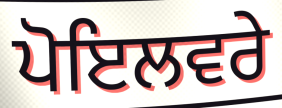
ਪੋਇਲਵਰੇ